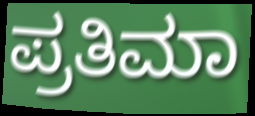
ಪ್ರತಿಮಾ